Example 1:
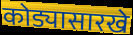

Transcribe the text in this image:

कोड्यासारखे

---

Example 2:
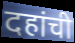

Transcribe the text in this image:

दहांची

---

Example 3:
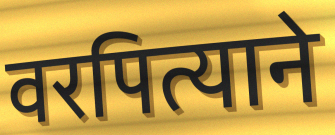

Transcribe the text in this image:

वरपित्याने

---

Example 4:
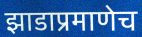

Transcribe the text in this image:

झाडाप्रमाणेच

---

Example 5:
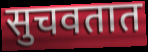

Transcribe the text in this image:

सुचवतात